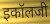
इकॉलजी